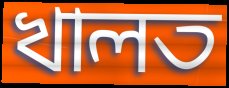
খালত